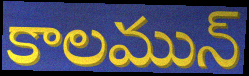
కాలమున్